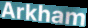
Arkham